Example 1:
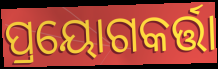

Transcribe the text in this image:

ପ୍ରୟୋଗକର୍ତ୍ତା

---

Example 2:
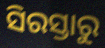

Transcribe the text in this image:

ସିରସ୍ତାରୁ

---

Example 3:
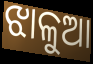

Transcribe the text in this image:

ଝାଳୁଆ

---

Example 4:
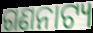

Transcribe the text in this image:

ଗଣନାଟ୍ୟ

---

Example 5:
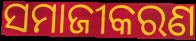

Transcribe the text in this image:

ସମାଜୀକରଣ